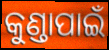
କୁଣ୍ଡାପାଇଁ